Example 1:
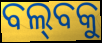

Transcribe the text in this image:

ବଲ୍‌ବକୁ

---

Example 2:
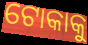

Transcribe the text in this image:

ଟୋକାକୁ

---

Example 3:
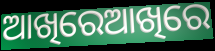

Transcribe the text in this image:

ଆଖିରେଆଖିରେ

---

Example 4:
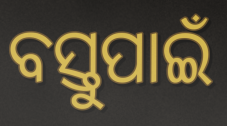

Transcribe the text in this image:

ବସ୍ତୁପାଇଁ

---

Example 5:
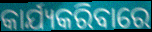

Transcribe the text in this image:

କାର୍ଯ୍ୟକରିବାରେ